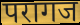
परागज